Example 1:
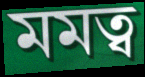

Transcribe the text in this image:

মমত্ব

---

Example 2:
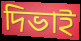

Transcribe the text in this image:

দিভাই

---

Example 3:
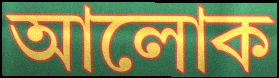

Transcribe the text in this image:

আলোক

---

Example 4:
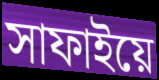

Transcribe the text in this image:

সাফাইয়ে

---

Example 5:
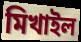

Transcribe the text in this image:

মিখাইল